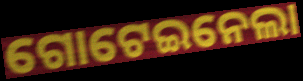
ଗୋଟେଇନେଲା